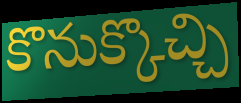
కొనుక్కొచ్చి